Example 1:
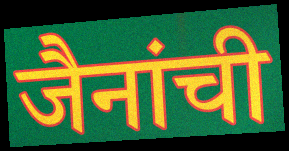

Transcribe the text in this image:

जैनांची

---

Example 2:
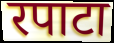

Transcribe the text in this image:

रपाटा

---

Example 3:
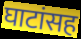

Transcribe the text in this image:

घाटांसह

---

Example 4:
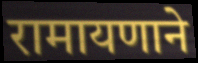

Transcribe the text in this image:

रामायणाने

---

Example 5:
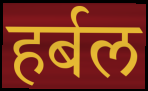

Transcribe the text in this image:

हर्बल